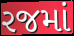
રજમાં